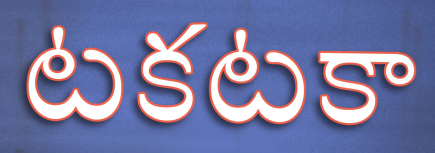
టకటకా